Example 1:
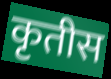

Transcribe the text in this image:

कृतीस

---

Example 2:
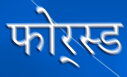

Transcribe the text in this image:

फोर्स्ड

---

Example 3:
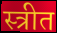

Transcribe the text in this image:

स्त्रीत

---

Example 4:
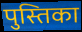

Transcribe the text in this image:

पुस्तिका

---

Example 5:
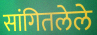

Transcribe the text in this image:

सांगितलेले